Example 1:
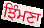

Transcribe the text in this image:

ਝਿੰਮਣਾ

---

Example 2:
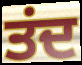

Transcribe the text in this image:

ਤਂਦ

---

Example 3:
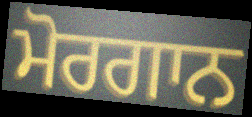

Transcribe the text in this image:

ਮੋਰਗਾਨ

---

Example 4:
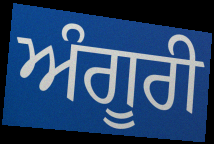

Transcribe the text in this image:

ਅੰਗੂਰੀ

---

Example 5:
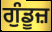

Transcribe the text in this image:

ਗੁੰਡੂਜ਼